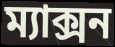
ম্যাক্সন